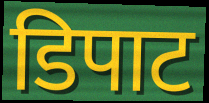
डिपाट